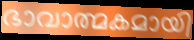
ഭാവാത്മകമായി